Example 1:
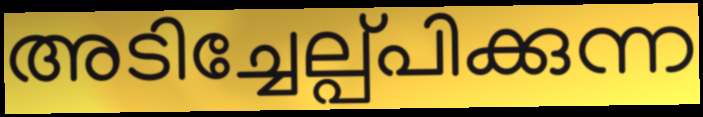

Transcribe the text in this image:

അടിച്ചേല്പ്പിക്കുന്ന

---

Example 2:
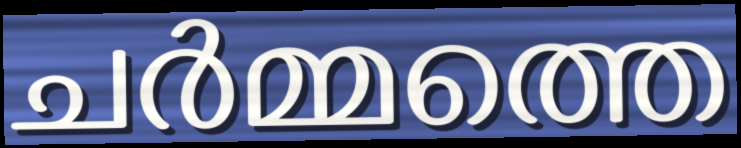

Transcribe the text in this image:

ചർമ്മത്തെ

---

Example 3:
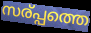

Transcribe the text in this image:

സര്പ്പത്തെ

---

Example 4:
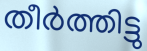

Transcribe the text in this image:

തീർത്തിട്ടു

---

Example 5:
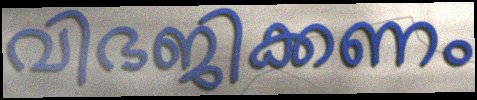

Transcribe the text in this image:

വിഭജിക്കണം